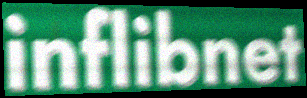
inflibnet